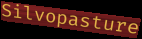
Silvopasture